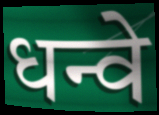
धन्वे